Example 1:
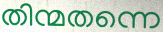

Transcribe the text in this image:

തിന്മതന്നെ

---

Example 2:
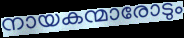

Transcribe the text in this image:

നായകന്മാരോടും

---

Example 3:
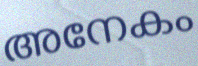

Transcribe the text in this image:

അനേകം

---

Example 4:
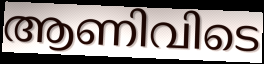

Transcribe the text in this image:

ആണിവിടെ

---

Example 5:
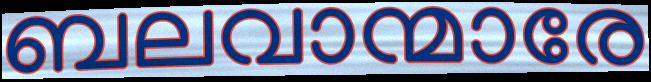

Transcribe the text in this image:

ബലവാന്മാരേ